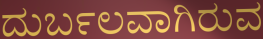
ದುರ್ಬಲವಾಗಿರುವ